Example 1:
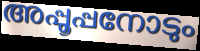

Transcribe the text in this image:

അപ്പൂപ്പനോടും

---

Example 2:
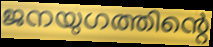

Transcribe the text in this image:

ജനയുഗത്തിന്റെ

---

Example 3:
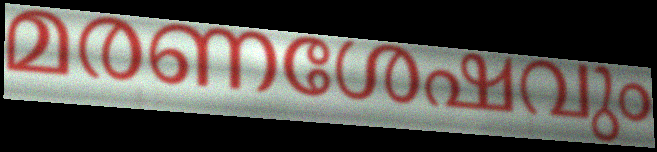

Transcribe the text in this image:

മരണശേഷവും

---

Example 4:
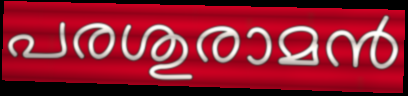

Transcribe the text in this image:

പരശുരാമൻ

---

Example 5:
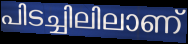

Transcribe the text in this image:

പിടച്ചിലിലാണ്